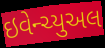
ઇવેન્ચ્યુઅલ